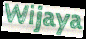
Wijaya